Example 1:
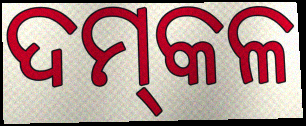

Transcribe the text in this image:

ଦମ୍‌କଳ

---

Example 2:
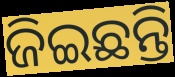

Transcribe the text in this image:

ଜିଇଛନ୍ତି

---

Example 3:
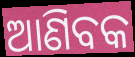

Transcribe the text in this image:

ଆଣିବକ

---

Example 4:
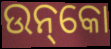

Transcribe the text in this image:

ଉନ୍‌କୋ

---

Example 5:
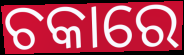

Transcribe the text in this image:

ଚକାରେ